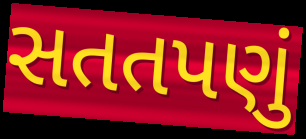
સતતપણું